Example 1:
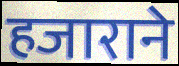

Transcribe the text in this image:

हजाराने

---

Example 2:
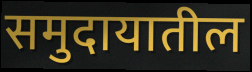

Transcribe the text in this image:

समुदायातील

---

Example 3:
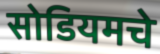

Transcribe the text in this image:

सोडियमचे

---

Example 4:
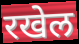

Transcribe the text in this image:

रखेल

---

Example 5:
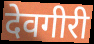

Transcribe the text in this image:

देवगीरी